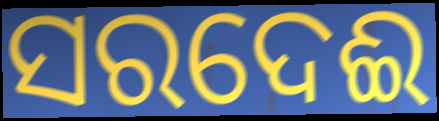
ସରଦେଈ